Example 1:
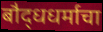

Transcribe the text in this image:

बौद्धधर्माचा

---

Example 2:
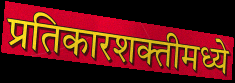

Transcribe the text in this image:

प्रतिकारशक्तीमध्ये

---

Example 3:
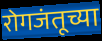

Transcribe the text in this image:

रोगजंतूच्या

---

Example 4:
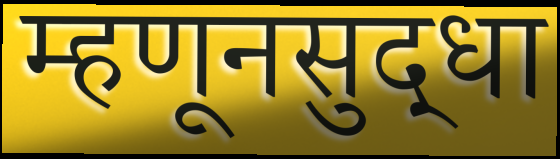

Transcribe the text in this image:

म्हणूनसुद्धा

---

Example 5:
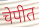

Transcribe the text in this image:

चेपीत